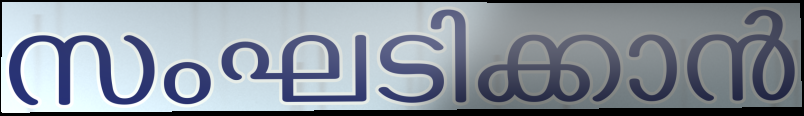
സംഘടിക്കാൻ